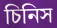
চিনিস